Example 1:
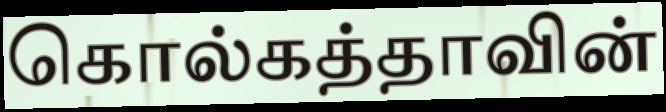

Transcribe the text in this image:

கொல்கத்தாவின்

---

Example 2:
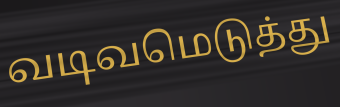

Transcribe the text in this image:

வடிவமெடுத்து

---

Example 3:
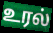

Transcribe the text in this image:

உரல்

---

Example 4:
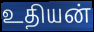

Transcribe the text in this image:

உதியன்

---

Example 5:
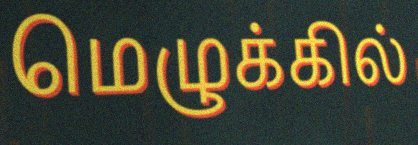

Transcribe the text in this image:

மெழுக்கில்